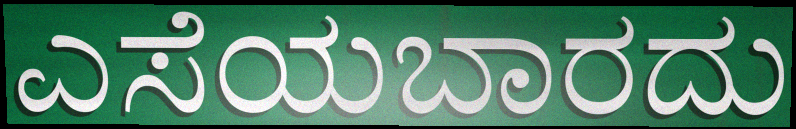
ಎಸೆಯಬಾರದು